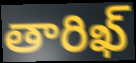
తారిఖ్